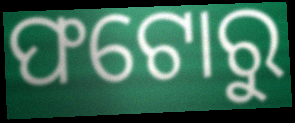
ଫଟୋରୁ